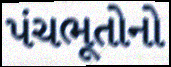
પંચભૂતોનો